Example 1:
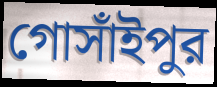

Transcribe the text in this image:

গোসাঁইপুর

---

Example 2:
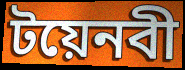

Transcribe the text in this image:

টয়েনবী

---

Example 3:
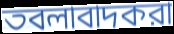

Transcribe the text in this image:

তবলাবাদকরা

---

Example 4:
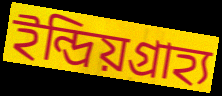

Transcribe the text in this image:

ইন্দ্রিয়গ্রাহ্য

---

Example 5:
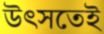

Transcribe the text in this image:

উৎসতেই